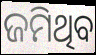
ଜମିଥିବ